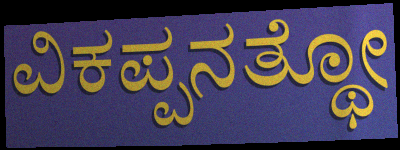
ವಿಕಪ್ಪನತ್ಥೋ